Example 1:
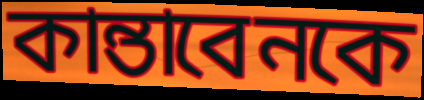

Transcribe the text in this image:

কান্তাবেনকে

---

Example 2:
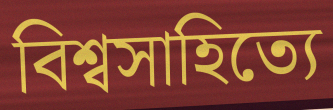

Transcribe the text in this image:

বিশ্বসাহিত্যে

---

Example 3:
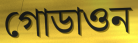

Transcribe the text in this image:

গোডাওন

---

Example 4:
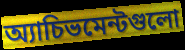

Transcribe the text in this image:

অ্যাচিভমেন্টগুলো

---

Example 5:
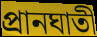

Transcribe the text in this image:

প্রানঘাতী